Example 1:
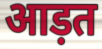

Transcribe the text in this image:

आड़त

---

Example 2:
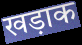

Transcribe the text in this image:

खड़ाक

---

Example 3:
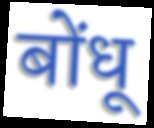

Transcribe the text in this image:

बोंधू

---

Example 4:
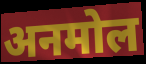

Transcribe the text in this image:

अनमोल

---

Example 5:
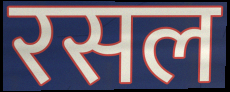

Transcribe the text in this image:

रसल